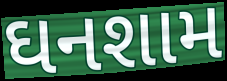
ઘનશામ